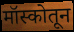
मॉस्कोतून